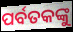
ପର୍ବତକଙ୍କୁ